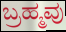
ಬ್ರಹ್ಮವು